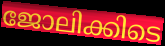
ജോലിക്കിടെ